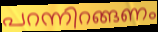
പറന്നിറങ്ങണം